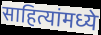
साहित्यांमध्ये